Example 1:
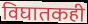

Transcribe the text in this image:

विघातकही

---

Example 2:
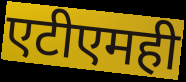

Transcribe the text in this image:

एटीएमही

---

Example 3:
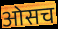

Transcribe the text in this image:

ओसच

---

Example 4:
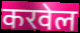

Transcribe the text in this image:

करवेल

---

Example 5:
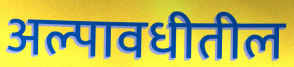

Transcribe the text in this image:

अल्पावधीतील